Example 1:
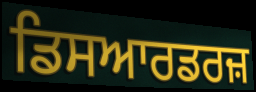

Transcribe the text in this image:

ਡਿਸਆਰਡਰਜ਼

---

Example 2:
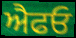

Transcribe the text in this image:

ਐਫਓ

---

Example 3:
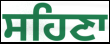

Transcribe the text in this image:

ਸਹਿਣਾ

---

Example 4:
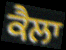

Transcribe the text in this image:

ਕੈਲਾ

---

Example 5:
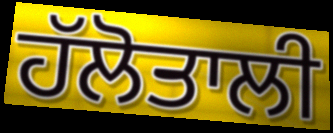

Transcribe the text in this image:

ਹੱਲੋਤਾਲੀ